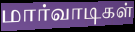
மார்வாடிகள்